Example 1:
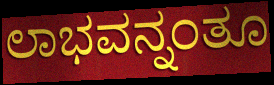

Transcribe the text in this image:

ಲಾಭವನ್ನಂತೂ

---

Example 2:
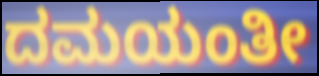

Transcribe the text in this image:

ದಮಯಂತೀ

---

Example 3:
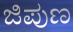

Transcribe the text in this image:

ಜಿಪುಣ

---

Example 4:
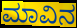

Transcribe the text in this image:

ಮಾವಿನ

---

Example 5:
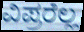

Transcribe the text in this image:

ವಿಪ್ರರೆಲ್ಲ